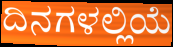
ದಿನಗಳಲ್ಲಿಯೆ